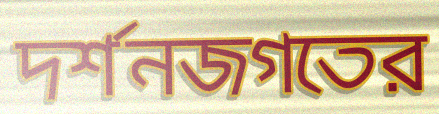
দর্শনজগতের